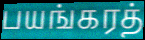
பயங்கரத்